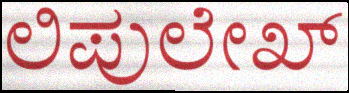
ಲಿಪುಲೇಖ್